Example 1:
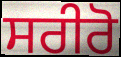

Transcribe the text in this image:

ਸਰੀਰੋ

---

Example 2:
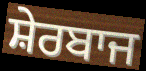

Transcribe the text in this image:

ਸ਼ੇਰਬਾਜ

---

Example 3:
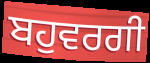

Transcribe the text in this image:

ਬਹੁਵਰਗੀ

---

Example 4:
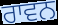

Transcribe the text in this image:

ਰਾਵਨ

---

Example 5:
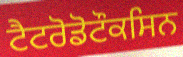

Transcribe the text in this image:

ਟੈਟਰੋਡੋਟੌਕਸਿਨ